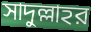
সাদুল্লাহর